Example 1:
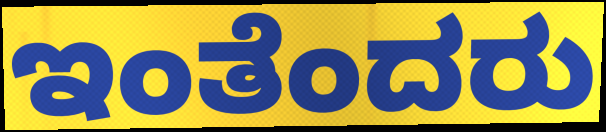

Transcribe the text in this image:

ಇಂತೆಂದರು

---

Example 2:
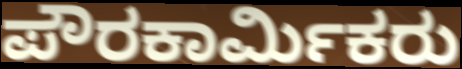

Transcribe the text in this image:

ಪೌರಕಾರ್ಮಿಕರು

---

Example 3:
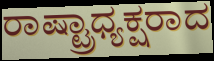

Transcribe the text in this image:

ರಾಷ್ಟ್ರಾಧ್ಯಕ್ಷರಾದ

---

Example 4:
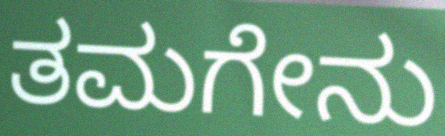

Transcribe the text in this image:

ತಮಗೇನು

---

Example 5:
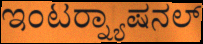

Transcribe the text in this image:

ಇಂಟರ್‍ನ್ಯಾಷನಲ್